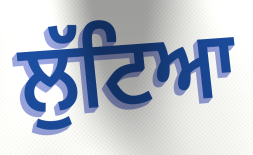
ਲੁੱਟਿਆ